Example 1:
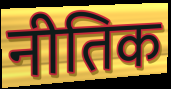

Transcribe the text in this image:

नीतिक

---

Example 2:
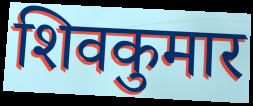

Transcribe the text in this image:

शिवकुमार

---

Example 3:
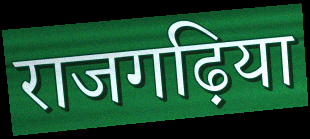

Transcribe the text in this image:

राजगढ़िया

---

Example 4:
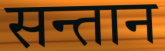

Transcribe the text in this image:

सन्तान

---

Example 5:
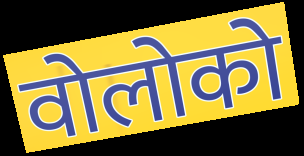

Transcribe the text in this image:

वोलोको